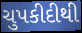
ચુપકીદીથી